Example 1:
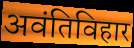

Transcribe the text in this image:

अवंतिविहार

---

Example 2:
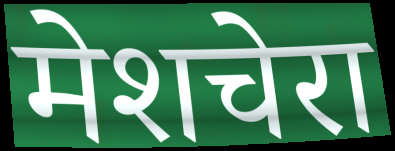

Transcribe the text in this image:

मेशचेरा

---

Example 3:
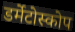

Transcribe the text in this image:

डर्मेटोस्कोप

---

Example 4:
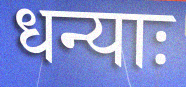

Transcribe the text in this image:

धन्याः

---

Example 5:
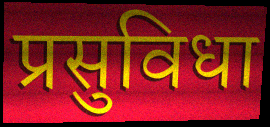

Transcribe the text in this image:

प्रसुविधा